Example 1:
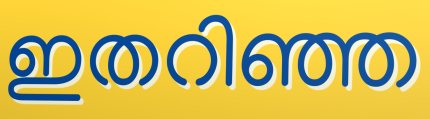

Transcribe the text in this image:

ഇതറിഞ്ഞ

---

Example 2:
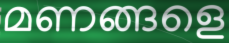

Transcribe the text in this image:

മണങ്ങളെ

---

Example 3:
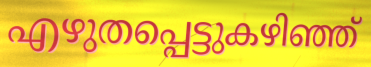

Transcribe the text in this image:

എഴുതപ്പെട്ടുകഴിഞ്ഞ്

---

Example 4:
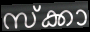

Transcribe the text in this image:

സ്ക്കാ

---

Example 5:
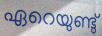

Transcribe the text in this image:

ഏറെയുണ്ടു്